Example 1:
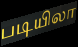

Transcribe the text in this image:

படியிலா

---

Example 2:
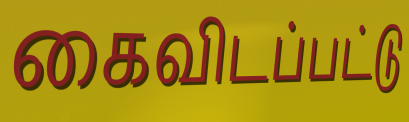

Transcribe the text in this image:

கைவிடப்பட்டு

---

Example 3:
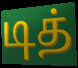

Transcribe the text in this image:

டித்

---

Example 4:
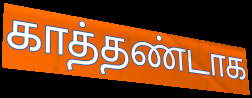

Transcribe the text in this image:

காத்தண்டாக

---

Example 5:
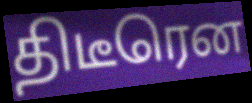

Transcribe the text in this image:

திடீரென